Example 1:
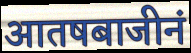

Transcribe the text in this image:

आतषबाजीनं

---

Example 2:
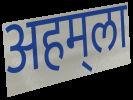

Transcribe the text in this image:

अहम्‌ला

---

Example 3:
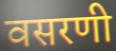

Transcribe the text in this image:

वसरणी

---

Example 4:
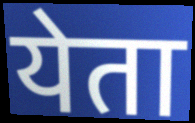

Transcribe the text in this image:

येता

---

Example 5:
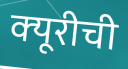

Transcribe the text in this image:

क्यूरीची